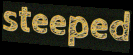
steeped